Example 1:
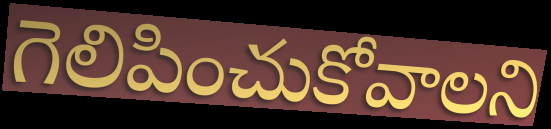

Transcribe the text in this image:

గెలిపించుకోవాలని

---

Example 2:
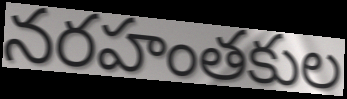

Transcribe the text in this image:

నరహంతకుల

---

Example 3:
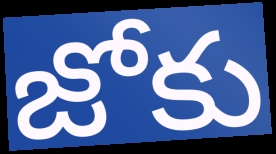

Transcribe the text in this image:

జోకు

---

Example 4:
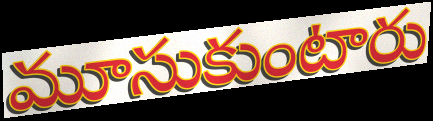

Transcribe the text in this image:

మూసుకుంటారు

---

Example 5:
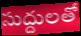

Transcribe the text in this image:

సుద్దులతో